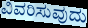
ವಿವರಿಸುವುದು